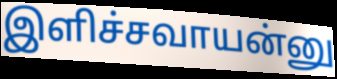
இளிச்சவாயன்னு